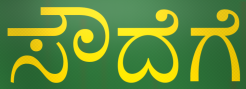
ಸೌದೆಗೆ